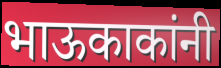
भाऊकाकांनी